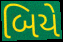
બિયે